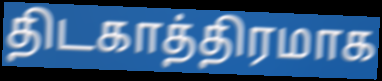
திடகாத்திரமாக